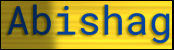
Abishag